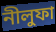
নীলুফা